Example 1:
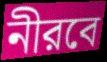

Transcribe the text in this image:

নীরবে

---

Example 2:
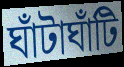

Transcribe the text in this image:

ঘাঁটাঘাঁটি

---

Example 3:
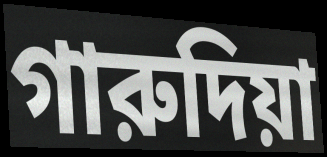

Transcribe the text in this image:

গারুদিয়া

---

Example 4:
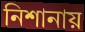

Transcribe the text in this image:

নিশানায়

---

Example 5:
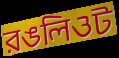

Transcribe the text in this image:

রঙলিওট